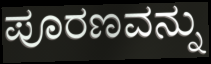
ಪೂರಣವನ್ನು